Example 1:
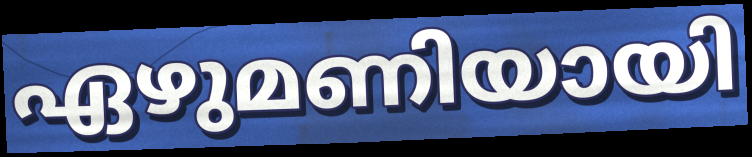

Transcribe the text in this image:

ഏഴുമണിയായി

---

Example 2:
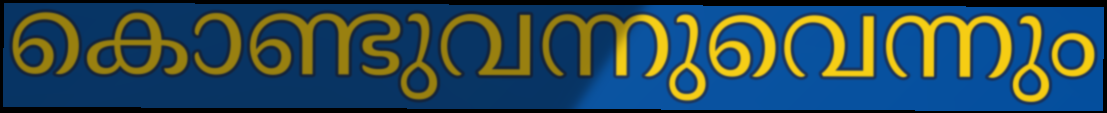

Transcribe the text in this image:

കൊണ്ടുവന്നുവെന്നും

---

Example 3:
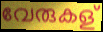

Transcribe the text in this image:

വേരുകള്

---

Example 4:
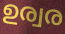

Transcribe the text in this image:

ഉര്വര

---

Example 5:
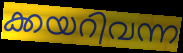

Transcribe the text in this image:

ക്കയറിവന്ന